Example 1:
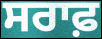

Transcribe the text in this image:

ਸਰਾਫ਼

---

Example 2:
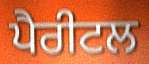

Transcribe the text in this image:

ਪੈਰੀਟਲ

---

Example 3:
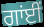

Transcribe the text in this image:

ਗਾਂਈਂ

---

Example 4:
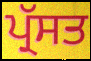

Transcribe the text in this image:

ਪ੍ਰੱਸਤ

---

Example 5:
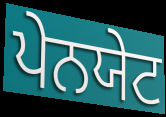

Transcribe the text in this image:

ਪੇਨਯੇਟ